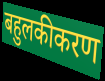
बहुलकीकरण